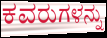
ಕವರುಗಳನ್ನು